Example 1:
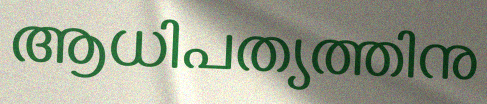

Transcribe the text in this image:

ആധിപത്യത്തിനു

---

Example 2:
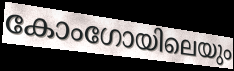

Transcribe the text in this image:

കോംഗോയിലെയും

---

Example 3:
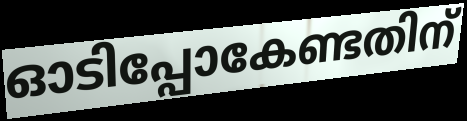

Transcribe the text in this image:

ഓടിപ്പോകേണ്ടതിന്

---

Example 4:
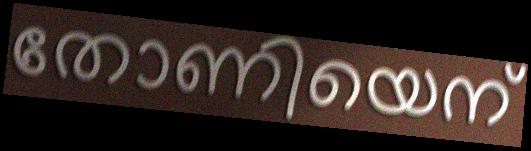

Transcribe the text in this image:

തോണിയെന്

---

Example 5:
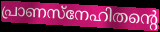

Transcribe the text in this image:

പ്രാണസ്നേഹിതന്റെ